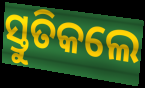
ସ୍ତୁତିକଲେ